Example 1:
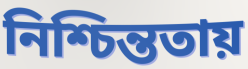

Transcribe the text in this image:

নিশ্চিন্ততায়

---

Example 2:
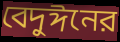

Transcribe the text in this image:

বেদুঈনের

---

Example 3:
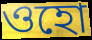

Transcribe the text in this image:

ওহো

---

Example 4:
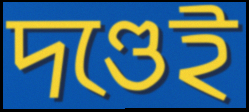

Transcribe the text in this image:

দণ্ডেই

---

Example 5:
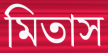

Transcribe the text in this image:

মিতাস